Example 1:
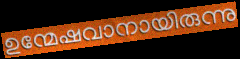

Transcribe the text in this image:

ഉന്മേഷവാനായിരുന്നു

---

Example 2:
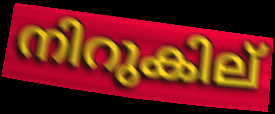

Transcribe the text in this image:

നിറുകില്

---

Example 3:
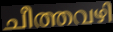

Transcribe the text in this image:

ചീത്തവഴി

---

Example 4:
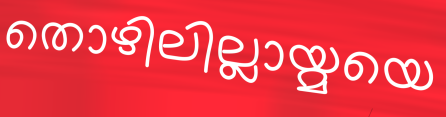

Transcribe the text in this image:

തൊഴിലില്ലായ്മയെ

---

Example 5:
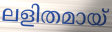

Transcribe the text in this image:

ലളിതമായ്